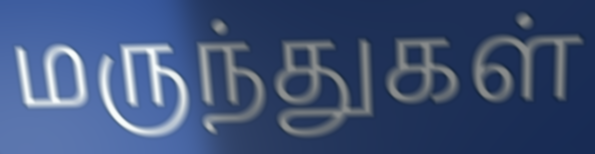
மருந்துகள்